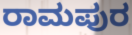
ರಾಮಪುರ